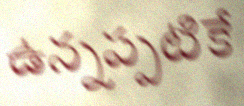
ఉన్నప్పటికే